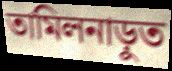
তামিলনাড়ুত